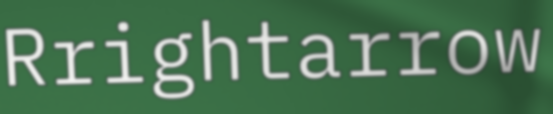
Rrightarrow